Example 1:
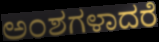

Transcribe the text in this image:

ಅಂಶಗಳಾದರೆ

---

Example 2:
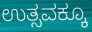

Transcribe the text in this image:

ಉತ್ಸವಕ್ಕೂ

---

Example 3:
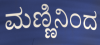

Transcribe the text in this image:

ಮಣ್ಣಿನಿಂದ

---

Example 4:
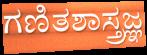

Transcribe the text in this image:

ಗಣಿತಶಾಸ್ತ್ರಜ್ಞ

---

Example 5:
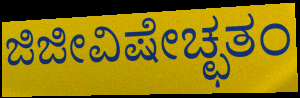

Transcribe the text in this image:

ಜಿಜೀವಿಷೇಚ್ಛತಂ